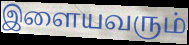
இளையவரும்